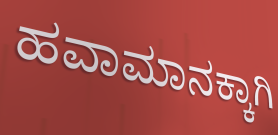
ಹವಾಮಾನಕ್ಕಾಗಿ